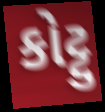
કોટ્ટુ